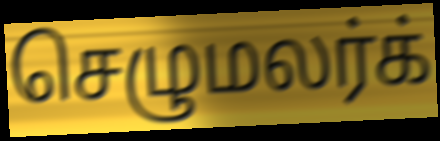
செழுமலர்க்